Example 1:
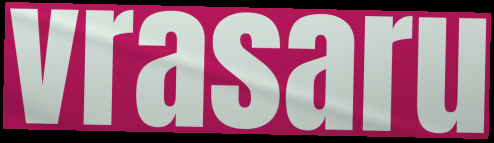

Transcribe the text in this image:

vrasaru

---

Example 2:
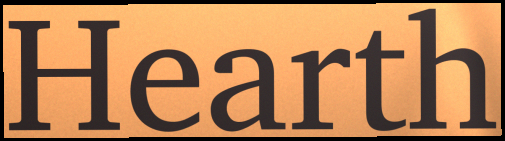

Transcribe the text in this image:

Hearth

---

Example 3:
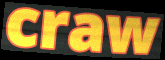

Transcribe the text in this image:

craw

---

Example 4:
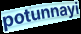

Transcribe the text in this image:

potunnayi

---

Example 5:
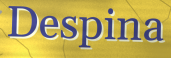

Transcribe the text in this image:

Despina